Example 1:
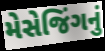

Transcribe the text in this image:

મેસેજિંગનું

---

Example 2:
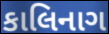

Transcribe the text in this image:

કાલિનાગ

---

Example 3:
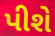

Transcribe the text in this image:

પીશે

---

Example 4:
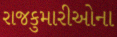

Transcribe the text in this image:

રાજકુમારીઓના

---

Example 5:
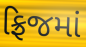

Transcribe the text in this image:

ફ્રિજમાં